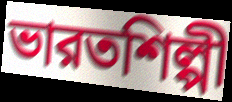
ভারতশিল্পী